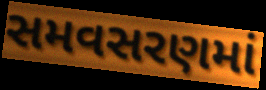
સમવસરણમાં